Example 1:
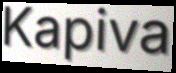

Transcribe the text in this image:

Kapiva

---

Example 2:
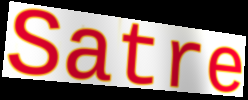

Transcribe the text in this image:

Satre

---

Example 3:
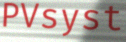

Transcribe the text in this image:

PVsyst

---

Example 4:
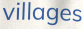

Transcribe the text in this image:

villages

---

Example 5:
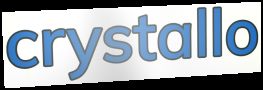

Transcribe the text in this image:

crystallo